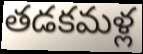
తడకమళ్ల